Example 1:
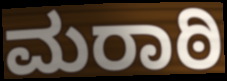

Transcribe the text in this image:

ಮರಾಠಿ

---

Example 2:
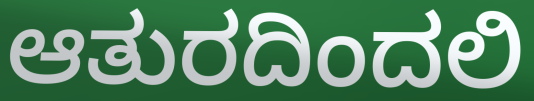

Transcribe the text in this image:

ಆತುರದಿಂದಲಿ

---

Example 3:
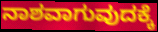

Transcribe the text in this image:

ನಾಶವಾಗುವುದಕ್ಕೆ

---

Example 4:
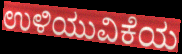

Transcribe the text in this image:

ಉಳಿಯುವಿಕೆಯ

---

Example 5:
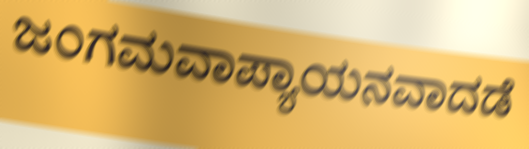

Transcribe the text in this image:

ಜಂಗಮವಾಪ್ಯಾಯನವಾದಡೆ